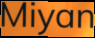
Miyan